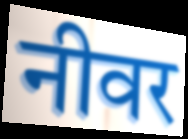
नीवर